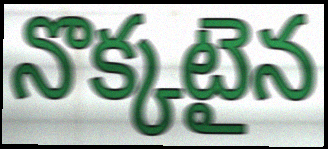
నొక్కటైన